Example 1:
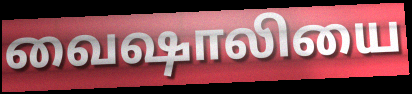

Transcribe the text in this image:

வைஷாலியை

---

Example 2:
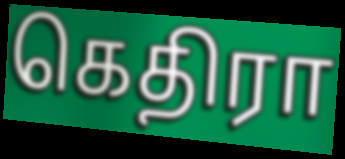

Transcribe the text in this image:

கெதிரா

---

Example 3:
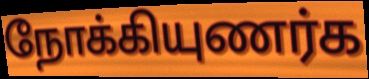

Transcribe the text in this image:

நோக்கியுணர்க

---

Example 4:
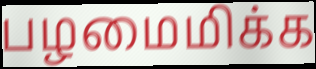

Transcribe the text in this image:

பழமைமிக்க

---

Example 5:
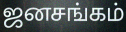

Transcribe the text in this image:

ஜனசங்கம்